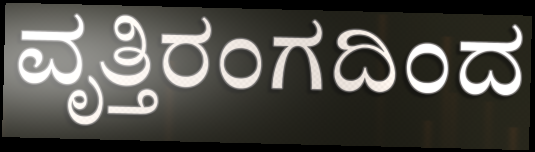
ವೃತ್ತಿರಂಗದಿಂದ